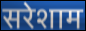
सरेशाम